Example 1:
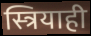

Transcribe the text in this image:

स्त्रियाही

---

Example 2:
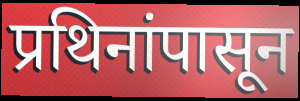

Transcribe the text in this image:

प्रथिनांपासून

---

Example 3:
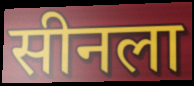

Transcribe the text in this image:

सीनला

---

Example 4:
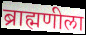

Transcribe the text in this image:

ब्राह्मणीला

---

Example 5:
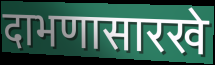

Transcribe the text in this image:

दाभणासारखे